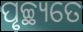
ପୃଚ୍ଛ୍ୟତେ